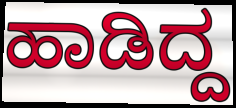
ಹಾಡಿದ್ದ